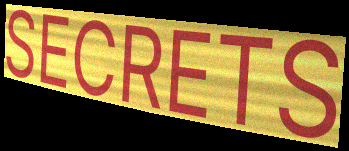
SECRETS